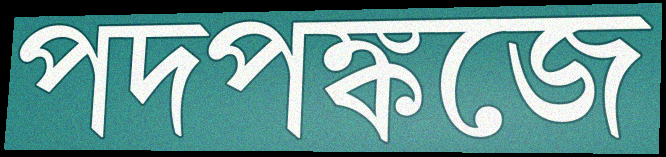
পদপঙ্কজে